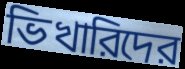
ভিখারিদের